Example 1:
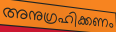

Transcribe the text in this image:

അനുഗ്രഹിക്കണം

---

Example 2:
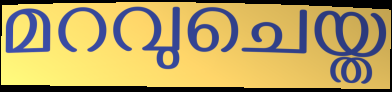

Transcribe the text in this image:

മറവുചെയ്ത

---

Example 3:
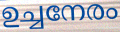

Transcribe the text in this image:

ഉച്ചനേരം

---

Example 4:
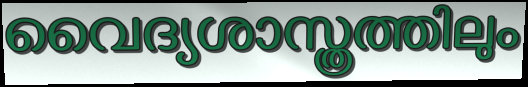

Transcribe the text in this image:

വൈദ്യശാസ്ത്രത്തിലും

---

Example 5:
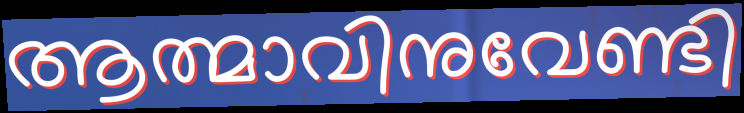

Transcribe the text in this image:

ആത്മാവിനുവേണ്ടി